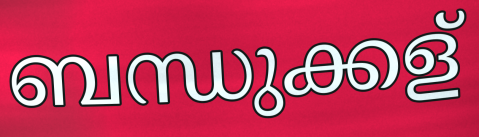
ബന്ധുക്കള്